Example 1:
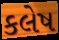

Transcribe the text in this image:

કલેષ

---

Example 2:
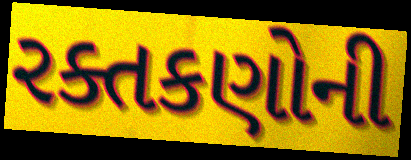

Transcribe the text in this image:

રક્તકણોની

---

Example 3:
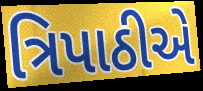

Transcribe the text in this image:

ત્રિપાઠીએ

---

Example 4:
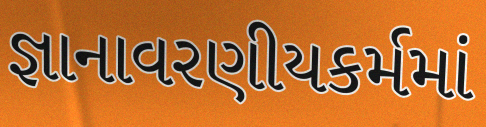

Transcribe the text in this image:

જ્ઞાનાવરણીયકર્મમાં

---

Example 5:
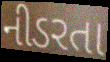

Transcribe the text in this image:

નીડરતા